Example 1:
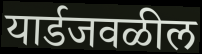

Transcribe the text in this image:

यार्डजवळील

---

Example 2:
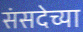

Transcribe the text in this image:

संसदेच्या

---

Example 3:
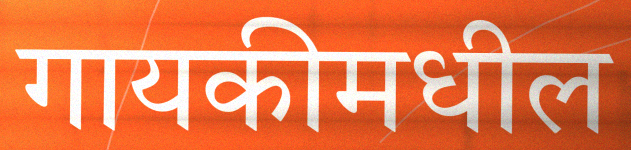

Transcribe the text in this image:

गायकीमधील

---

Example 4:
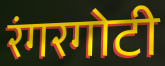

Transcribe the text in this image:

रंगरगोटी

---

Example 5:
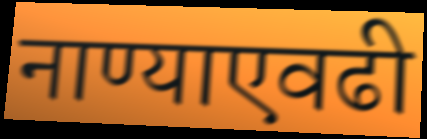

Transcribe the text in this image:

नाण्याएवढी